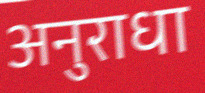
अनुराधा